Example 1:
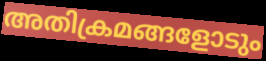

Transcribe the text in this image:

അതിക്രമങ്ങളോടും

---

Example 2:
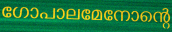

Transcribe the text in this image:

ഗോപാലമേനോന്റെ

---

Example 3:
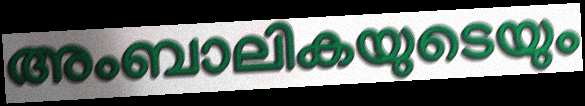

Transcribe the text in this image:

അംബാലികയുടെയും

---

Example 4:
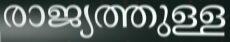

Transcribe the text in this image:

രാജ്യത്തുള്ള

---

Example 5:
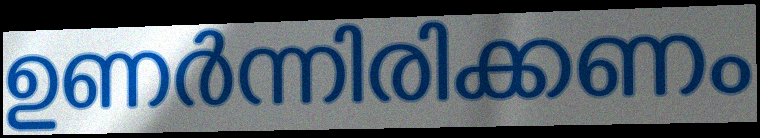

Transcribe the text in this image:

ഉണർന്നിരിക്കണം